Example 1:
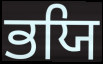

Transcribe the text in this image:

ਭਯਿ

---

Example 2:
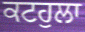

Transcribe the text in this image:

ਕਟਹੁਲਾ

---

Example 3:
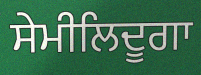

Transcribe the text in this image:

ਸੇਮੀਲਿਦੂਗਾ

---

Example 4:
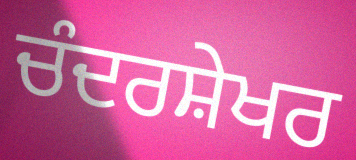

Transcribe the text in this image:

ਚੰਦਰਸ਼ੇਖਰ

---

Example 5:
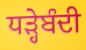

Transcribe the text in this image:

ਧੜ੍ਹੇਬੰਦੀ